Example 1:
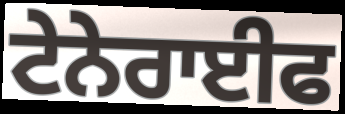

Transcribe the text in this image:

ਟੇਨੇਰਾਈਫ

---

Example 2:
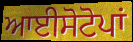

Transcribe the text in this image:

ਆਈਸੋਟੋਪਾਂ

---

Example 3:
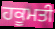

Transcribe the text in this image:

ਹਕੂਮਤੀ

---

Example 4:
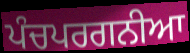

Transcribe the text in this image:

ਪੰਚਪਰਗਨੀਆ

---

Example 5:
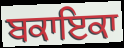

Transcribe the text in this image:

ਬਕਾਇਕਾ